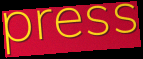
press